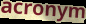
acronym